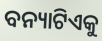
ବନ୍ୟାଟିଏକୁ